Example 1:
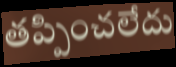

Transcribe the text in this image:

తప్పించలేదు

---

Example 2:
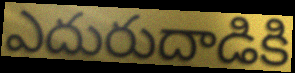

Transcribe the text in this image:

ఎదురుదాడికి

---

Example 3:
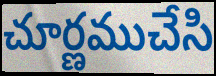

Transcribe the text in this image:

చూర్ణముచేసి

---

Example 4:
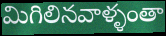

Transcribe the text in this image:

మిగిలినవాళ్ళంతా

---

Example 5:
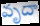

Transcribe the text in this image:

వృదా